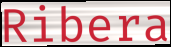
Ribera